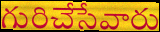
గురిచేసేవారు